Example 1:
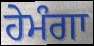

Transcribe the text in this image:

ਹੇਮੰਗਾ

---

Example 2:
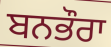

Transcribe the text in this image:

ਬਨਭੌਰਾ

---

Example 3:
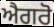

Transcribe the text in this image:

ਐਗਰੋ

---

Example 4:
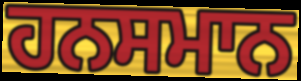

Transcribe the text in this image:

ਹਨਸਮਾਨ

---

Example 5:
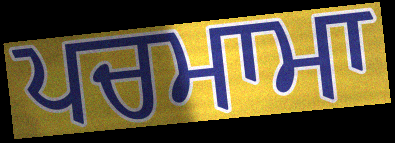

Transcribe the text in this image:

ਪਚਮਾਮਾ